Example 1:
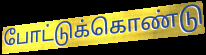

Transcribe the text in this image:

போட்டுக்கொண்டு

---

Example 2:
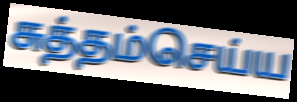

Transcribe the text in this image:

சுத்தம்செய்ய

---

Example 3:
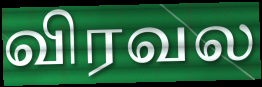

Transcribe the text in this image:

விரவல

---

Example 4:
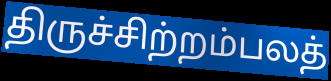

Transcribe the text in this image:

திருச்சிற்றம்பலத்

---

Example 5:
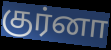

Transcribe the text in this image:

குர்னா